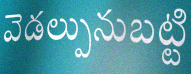
వెడల్పునుబట్టి